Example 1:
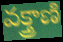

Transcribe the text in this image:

వక్త్రాణి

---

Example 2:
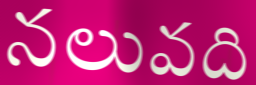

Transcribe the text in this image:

నలువది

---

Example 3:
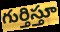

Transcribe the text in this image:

గుర్తిస్తూ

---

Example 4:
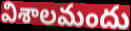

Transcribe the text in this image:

విశాలమందు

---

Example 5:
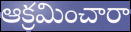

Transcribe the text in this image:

ఆక్రమించారా